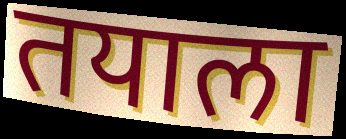
तयाला